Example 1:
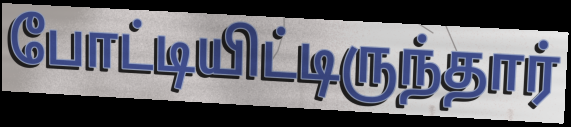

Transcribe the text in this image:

போட்டியிட்டிருந்தார்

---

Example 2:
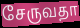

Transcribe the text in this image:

சேருவதா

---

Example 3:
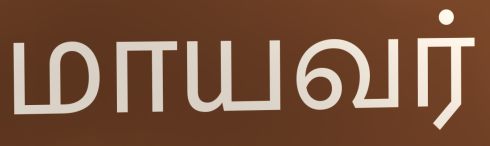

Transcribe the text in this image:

மாயவர்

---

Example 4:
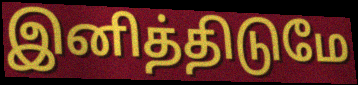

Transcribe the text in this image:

இனித்திடுமே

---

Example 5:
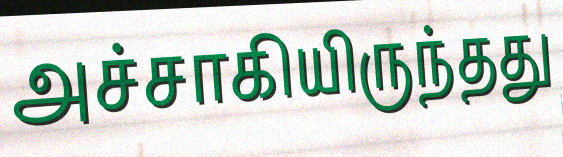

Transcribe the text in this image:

அச்சாகியிருந்தது